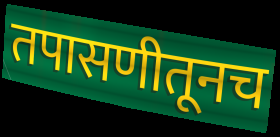
तपासणीतूनच